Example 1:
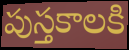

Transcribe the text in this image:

పుస్తకాలకి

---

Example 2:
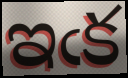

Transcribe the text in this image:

ఇఁక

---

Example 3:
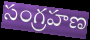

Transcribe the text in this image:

సంగ్రహణ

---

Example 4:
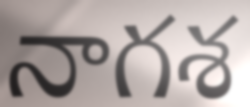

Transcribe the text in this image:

నాగశ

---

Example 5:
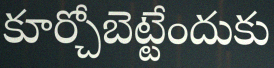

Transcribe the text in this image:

కూర్చోబెట్టేందుకు